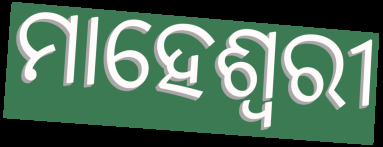
ମାହେଶ୍ଵରୀ